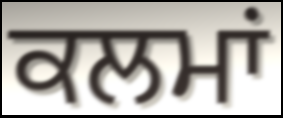
ਕਲਮਾਂ